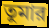
তুমার